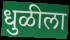
धुळीला